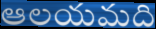
ఆలయమది